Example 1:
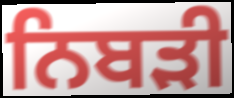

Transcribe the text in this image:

ਨਿਬੜੀ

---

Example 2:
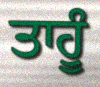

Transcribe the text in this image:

ਤਾਹੂੰ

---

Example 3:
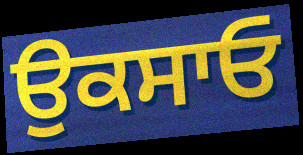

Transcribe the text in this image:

ਉਕਸਾਓ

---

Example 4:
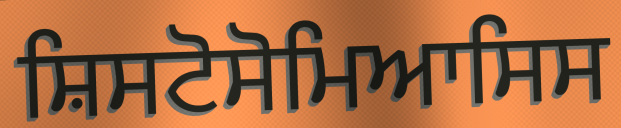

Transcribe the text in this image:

ਸ਼ਿਸਟੋਸੋਮਿਆਸਿਸ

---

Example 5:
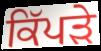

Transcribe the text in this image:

ਕਿੱਪੜੇ